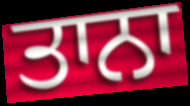
ਤਾਨਾ